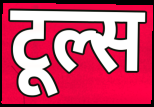
टूल्स